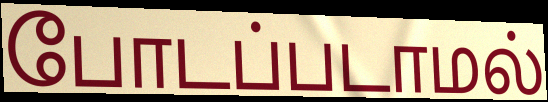
போடப்படாமல்